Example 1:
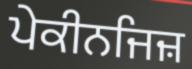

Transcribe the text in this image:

ਪੇਕੀਨਜਿਜ਼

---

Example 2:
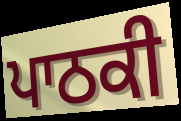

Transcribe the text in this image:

ਪਾਠਕੀ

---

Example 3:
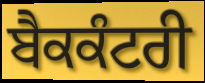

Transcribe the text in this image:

ਬੈਕਕੰਟਰੀ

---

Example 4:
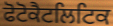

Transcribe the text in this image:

ਫੋਟੋਕੈਟਲਿਟਿਕ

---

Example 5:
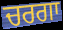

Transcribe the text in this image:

ਚਰਗਾ